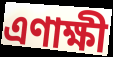
এণাক্ষী